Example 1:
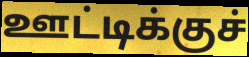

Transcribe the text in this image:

ஊட்டிக்குச்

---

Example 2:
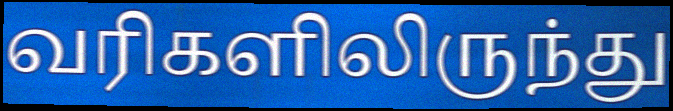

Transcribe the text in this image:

வரிகளிலிருந்து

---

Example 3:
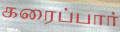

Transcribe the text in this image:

கரைப்பார்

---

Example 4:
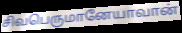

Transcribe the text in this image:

சிவபெருமானேயாவான்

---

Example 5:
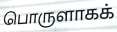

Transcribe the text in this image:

பொருளாகக்